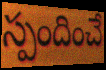
స్పందించే